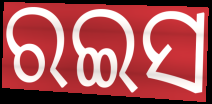
ରଇସ